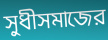
সুধীসমাজের